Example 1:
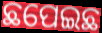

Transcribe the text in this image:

ଛପେଇଛ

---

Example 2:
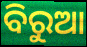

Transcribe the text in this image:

ବିରୁଆ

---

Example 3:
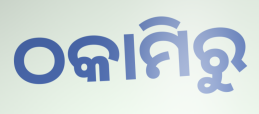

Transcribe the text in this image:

ଠକାମିରୁ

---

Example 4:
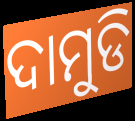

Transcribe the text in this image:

ଦାମୁଡି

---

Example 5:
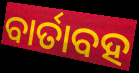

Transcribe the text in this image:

ବାର୍ତାବହ